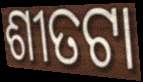
ଶୀତଟା